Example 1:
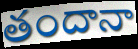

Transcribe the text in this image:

తందానా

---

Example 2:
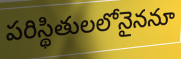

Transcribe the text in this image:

పరిస్థితులలోనైననూ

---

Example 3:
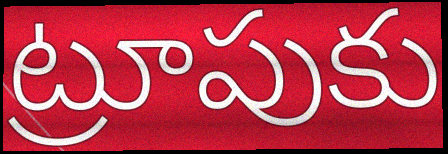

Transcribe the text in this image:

ట్రూపుకు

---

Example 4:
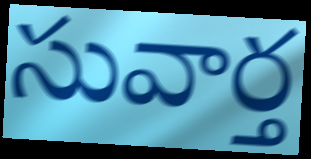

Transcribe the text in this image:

సువార్త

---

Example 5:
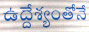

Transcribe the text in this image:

ఉద్దేశ్యంతోనే